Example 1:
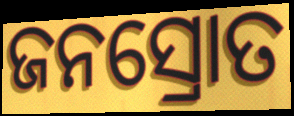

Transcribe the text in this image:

ଜନସ୍ରୋତ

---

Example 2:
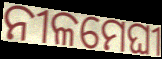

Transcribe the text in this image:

ନୀଳମେଘୀ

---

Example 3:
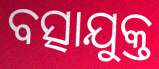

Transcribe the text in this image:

ବତ୍ସାଯୁକ୍ତ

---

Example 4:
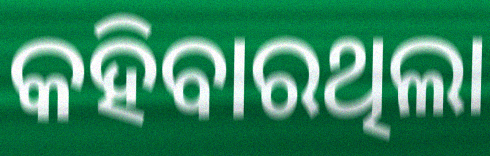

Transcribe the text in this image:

କହିବାରଥିଲା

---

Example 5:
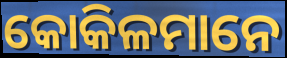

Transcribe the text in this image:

କୋକିଳମାନେ